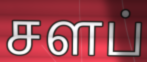
சளப்